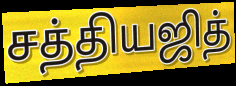
சத்தியஜித்